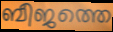
ബീജത്തെ